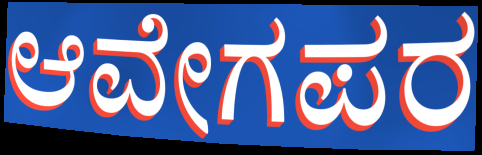
ಆವೇಗಪರ